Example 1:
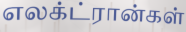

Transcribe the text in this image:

எலக்ட்ரான்கள்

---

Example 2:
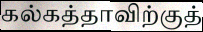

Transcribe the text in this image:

கல்கத்தாவிற்குத்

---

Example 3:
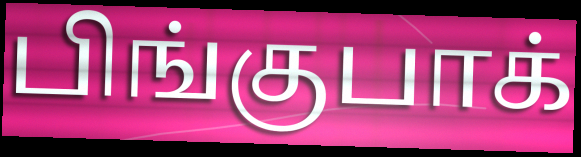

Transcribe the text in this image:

பிங்குபாக்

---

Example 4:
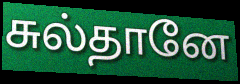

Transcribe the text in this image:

சுல்தானே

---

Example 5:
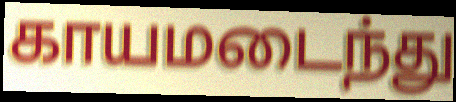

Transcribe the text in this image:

காயமடைந்து